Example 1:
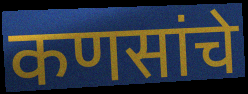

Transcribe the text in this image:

कणसांचे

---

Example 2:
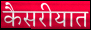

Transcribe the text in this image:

कैसरीयात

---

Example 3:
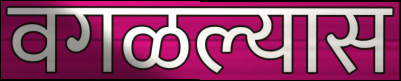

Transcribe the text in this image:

वगळल्यास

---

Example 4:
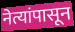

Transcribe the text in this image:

नेत्यांपासून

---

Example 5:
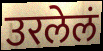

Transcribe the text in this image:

उरलेलं